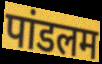
पांडलम